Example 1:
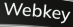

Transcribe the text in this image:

Webkey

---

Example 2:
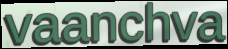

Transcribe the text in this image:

vaanchva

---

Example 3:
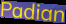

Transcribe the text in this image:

Padian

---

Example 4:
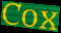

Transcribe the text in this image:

Cox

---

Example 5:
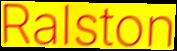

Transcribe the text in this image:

Ralston